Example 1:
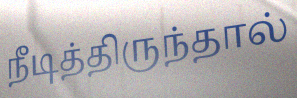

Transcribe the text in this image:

நீடித்திருந்தால்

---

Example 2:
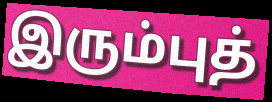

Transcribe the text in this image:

இரும்புத்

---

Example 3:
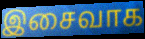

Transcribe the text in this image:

இசைவாக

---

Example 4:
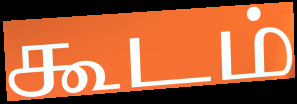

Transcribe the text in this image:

கூடம்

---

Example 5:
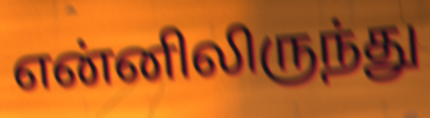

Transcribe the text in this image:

என்னிலிருந்து